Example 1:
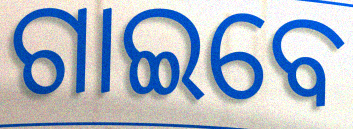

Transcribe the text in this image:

ଗାଇବେ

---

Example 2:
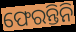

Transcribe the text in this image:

ଫେରନ୍ତିନି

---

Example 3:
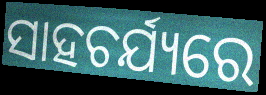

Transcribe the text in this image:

ସାହଚର୍ଯ୍ୟରେ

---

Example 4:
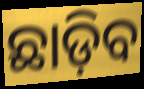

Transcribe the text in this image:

ଛାଡ଼ିବ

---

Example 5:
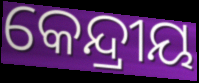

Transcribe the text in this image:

କେନ୍ଦ୍ରୀୟ